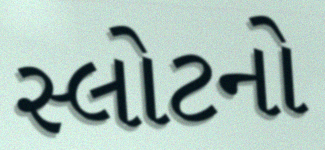
સ્લોટનો